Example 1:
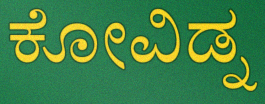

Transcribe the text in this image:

ಕೋವಿಡ್ನ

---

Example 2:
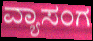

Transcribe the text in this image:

ವ್ಯಾಸಂಗ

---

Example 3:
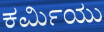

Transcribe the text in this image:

ಕರ್ಮಿಯು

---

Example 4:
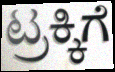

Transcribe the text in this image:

ಟ್ರಕ್ಕಿಗೆ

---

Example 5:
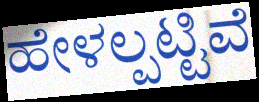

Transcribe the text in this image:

ಹೇಳಲ್ಪಟ್ಟಿವೆ